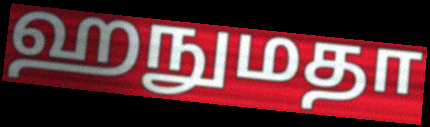
ஹநுமதா